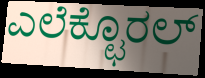
ಎಲೆಕ್ಟೊರಲ್